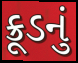
ક્રૂડનું